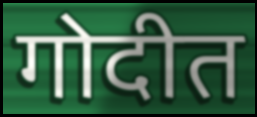
गोदीत